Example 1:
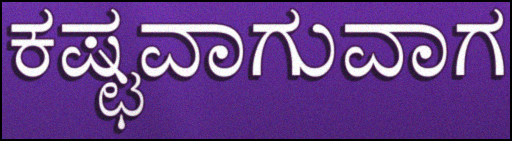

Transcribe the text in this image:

ಕಷ್ಟವಾಗುವಾಗ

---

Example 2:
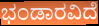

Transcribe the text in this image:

ಭಂಡಾರವಿದೆ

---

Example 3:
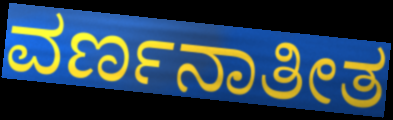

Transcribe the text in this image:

ವರ್ಣನಾತೀತ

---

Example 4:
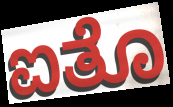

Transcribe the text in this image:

ಐತೊ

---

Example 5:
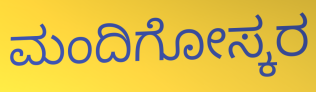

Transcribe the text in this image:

ಮಂದಿಗೋಸ್ಕರ